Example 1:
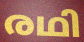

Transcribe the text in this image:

രഥി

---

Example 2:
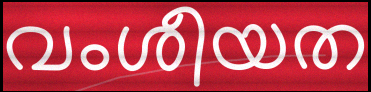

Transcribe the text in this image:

വംശീയത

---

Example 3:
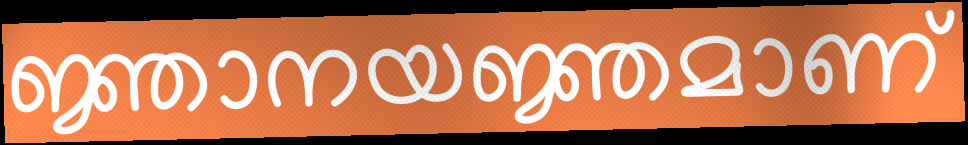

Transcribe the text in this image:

ജ്ഞാനയജ്ഞമാണ്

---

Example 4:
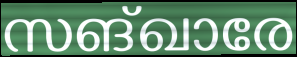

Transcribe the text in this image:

സങ്ഖാരേ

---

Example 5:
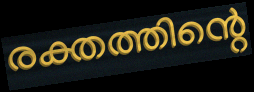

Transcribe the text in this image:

രക്തത്തിന്റെ